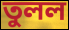
তুলল